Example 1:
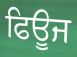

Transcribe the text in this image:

ਫਿਊਜ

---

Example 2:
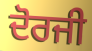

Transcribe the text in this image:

ਦੋਰਜੀ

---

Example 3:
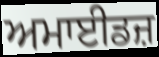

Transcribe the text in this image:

ਅਮਾਈਡਜ਼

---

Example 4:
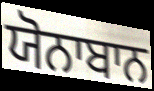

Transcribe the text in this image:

ਯੋਨਾਬਾਨ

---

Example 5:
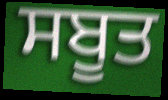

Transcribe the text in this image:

ਸਬੂਤ